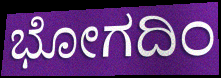
ಭೋಗದಿಂ